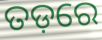
ତଡ଼ରେ